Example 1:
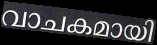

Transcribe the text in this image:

വാചകമായി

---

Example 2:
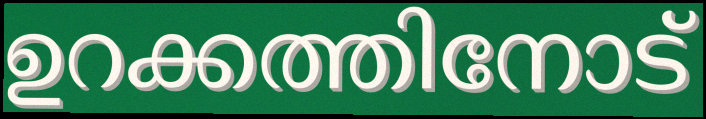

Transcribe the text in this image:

ഉറക്കത്തിനോട്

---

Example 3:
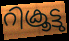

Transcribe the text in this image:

റിക്രൂട്ടു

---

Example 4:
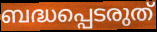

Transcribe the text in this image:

ബദ്ധപ്പെടരുത്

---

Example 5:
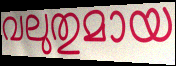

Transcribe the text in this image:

വലുതുമായ